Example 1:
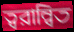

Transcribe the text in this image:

ত্বরান্বিত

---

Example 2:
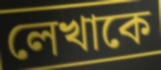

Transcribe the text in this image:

লেখাকে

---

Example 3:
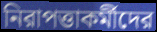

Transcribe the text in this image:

নিরাপত্তাকর্মীদের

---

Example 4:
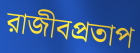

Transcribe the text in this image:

রাজীবপ্রতাপ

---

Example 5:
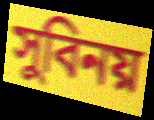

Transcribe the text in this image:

সুবিনয়